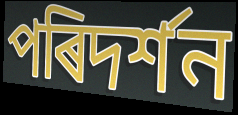
পৰিদৰ্শন